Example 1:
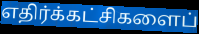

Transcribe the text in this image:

எதிர்க்கட்சிகளைப்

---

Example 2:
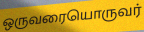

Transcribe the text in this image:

ஒருவரையொருவர்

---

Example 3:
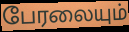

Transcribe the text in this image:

பேரலையும்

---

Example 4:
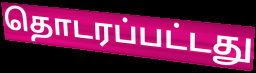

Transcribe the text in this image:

தொடரப்பட்டது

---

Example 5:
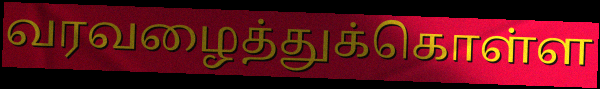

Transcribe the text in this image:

வரவழைத்துக்கொள்ள